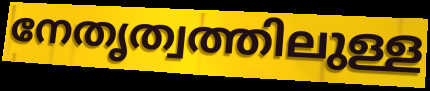
നേതൃത്വത്തിലുള്ള